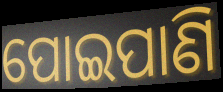
ପୋଇପାଣି